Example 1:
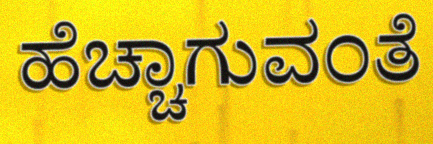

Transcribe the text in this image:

ಹೆಚ್ಚಾಗುವಂತೆ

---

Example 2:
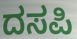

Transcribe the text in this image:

ದಸಪಿ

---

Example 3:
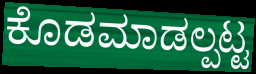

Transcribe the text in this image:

ಕೊಡಮಾಡಲ್ಪಟ್ಟ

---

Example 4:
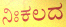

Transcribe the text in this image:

ನಿಃಕಲದ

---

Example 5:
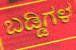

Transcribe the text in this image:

ಬಡ್ಡಿಗಳ